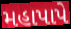
મહાપાપે